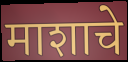
माशाचे